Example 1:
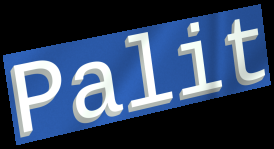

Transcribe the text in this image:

Palit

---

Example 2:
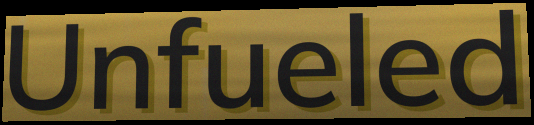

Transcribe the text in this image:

Unfueled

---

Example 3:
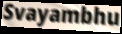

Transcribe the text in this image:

Svayambhu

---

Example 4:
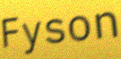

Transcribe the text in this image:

Fyson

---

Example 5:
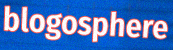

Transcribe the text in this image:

blogosphere